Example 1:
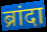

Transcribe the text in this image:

ब्रांदा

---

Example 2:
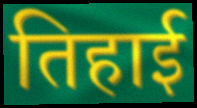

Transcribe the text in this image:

तिहाई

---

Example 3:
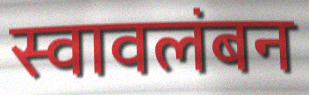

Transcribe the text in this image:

स्वावलंबन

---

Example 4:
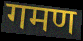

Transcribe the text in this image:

गमण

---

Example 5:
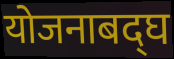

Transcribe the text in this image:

योजनाबद्घ